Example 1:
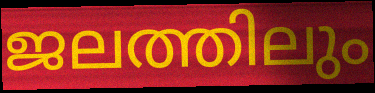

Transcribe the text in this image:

ജലത്തിലും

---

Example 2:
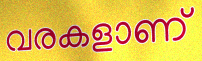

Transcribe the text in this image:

വരകളാണ്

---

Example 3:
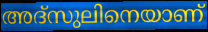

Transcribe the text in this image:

അദ്സുലിനെയാണ്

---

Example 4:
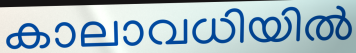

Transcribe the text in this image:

കാലാവധിയിൽ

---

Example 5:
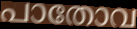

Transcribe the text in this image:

പാതോവ